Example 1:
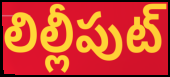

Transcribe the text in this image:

లిల్లీపుట్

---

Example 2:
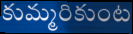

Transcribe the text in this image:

కుమ్మరికుంట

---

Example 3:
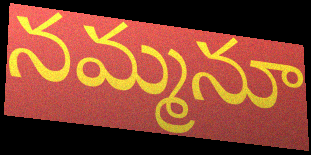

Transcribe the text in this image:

నమ్మనూ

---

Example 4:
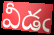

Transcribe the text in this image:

వీడఁ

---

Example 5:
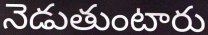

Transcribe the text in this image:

నెడుతుంటారు